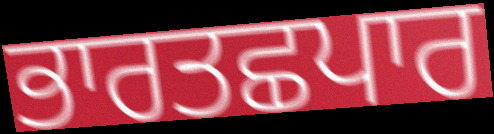
ਭਾਰਤਛਪਾਰ